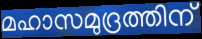
മഹാസമുദ്രത്തിന്